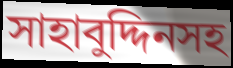
সাহাবুদ্দিনসহ